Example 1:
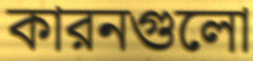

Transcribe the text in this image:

কারনগুলো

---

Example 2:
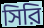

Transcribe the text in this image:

সিরি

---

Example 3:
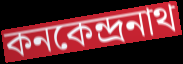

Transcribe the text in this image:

কনকেন্দ্রনাথ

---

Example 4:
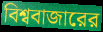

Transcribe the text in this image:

বিশ্ববাজারের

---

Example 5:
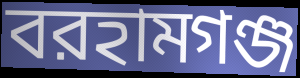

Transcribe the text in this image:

বরহামগঞ্জ